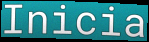
Inicia